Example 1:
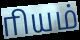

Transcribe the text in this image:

ரியம்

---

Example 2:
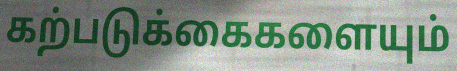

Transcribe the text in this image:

கற்படுக்கைகளையும்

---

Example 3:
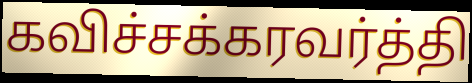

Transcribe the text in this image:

கவிச்சக்கரவர்த்தி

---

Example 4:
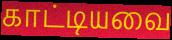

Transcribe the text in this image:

காட்டியவை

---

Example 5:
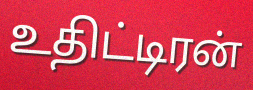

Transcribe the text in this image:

உதிட்டிரன்